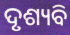
ଦୃଶ୍ୟବି